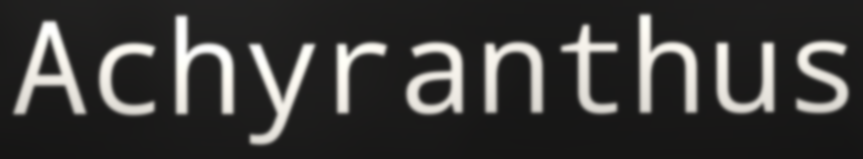
Achyranthus